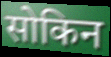
सोकिन